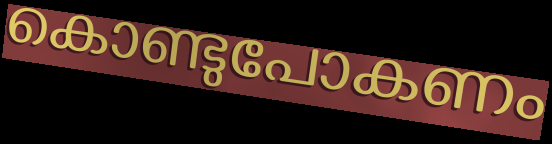
കൊണ്ടുപോകണം